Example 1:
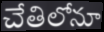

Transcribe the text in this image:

చేతిలోనూ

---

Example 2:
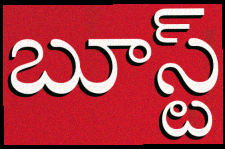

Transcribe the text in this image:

బూస్ట్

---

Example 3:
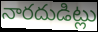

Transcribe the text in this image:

నారదుడిట్లు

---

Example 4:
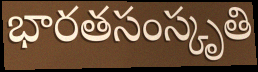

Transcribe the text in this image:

భారతసంస్కృతి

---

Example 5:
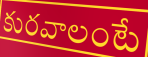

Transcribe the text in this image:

కురవాలంటే